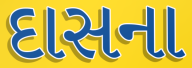
દાસના